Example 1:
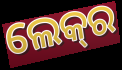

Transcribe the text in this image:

ଲେକ୍‍ର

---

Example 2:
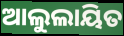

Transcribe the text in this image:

ଆଲୁଲାୟିତ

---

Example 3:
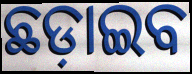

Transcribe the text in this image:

ଛଡ଼ାଇବ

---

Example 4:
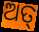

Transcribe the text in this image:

ଅତ୍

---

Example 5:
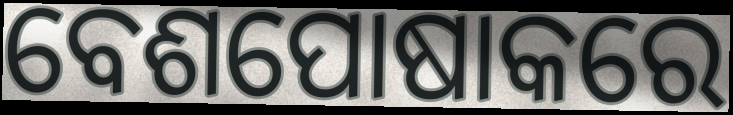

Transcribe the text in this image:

ବେଶପୋଷାକରେ